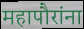
महापौरांना